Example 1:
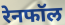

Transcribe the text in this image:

रेनफॉल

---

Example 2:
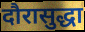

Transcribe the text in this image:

दौरासुद्धा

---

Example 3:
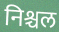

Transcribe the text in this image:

निश्चल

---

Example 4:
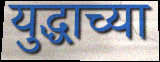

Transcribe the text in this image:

युद्धाच्या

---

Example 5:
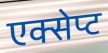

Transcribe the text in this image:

एक्सेप्ट